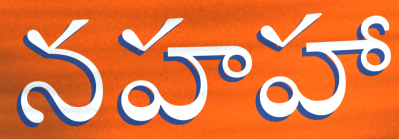
నహహా